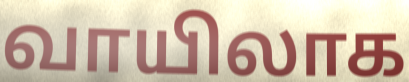
வாயிலாக